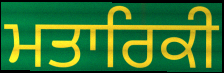
ਮਤਾਰਿਕੀ